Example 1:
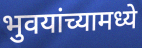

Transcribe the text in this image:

भुवयांच्यामध्ये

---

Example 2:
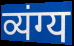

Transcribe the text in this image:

व्यंग्य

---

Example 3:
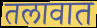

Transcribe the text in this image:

तलावात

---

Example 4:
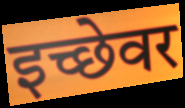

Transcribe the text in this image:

इच्छेवर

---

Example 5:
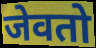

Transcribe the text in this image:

जेवतो